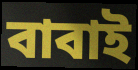
বাবাই